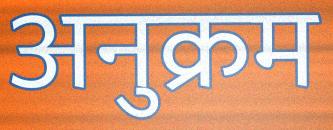
अनुक्रम